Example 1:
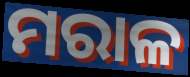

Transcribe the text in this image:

ମରାଳ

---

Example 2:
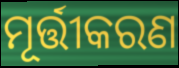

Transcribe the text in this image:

ମୂର୍ତ୍ତୀକରଣ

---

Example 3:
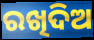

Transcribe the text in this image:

ରଖିଦିଅ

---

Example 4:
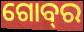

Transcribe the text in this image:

ଗୋବ୍‌ର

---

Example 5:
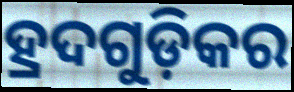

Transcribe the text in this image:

ହ୍ରଦଗୁଡ଼ିକର